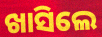
ଖାସିଲେ